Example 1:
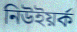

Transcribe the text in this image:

নিউইয়র্ক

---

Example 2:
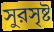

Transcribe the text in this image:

সুরসৃষ্ট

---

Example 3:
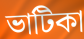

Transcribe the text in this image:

ভাটিকা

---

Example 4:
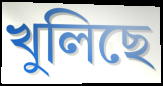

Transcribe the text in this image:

খুলিছে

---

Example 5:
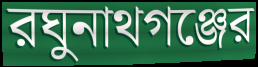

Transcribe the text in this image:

রঘুনাথগঞ্জের